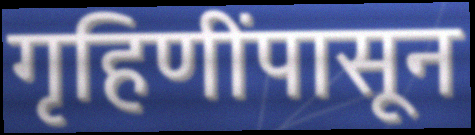
गृहिणींपासून